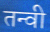
तन्वी